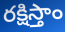
రక్షిస్తాం